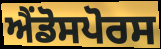
ਐਂਡੋਸਪੋਰਸ